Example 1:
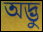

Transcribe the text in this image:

অদ্ভু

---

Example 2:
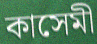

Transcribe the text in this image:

কাসেমী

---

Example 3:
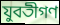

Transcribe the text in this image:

যুবতীগণ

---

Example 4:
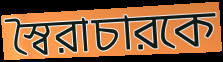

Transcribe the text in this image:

স্বৈরাচারকে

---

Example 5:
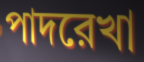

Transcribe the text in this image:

পাদরেখা